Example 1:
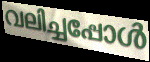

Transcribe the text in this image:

വലിച്ചപ്പോൾ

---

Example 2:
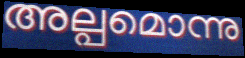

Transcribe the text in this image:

അല്പമൊന്നു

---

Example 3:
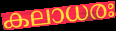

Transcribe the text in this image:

കലാധരഃ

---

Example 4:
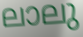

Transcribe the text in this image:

ലാലു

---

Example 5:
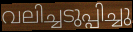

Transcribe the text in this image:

വലിച്ചടുപ്പിച്ചു